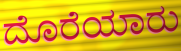
ದೊರೆಯಾರು